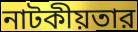
নাটকীয়তার